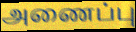
அணைப்பு